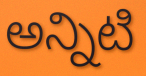
అన్నిటి